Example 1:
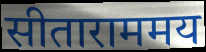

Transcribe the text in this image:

सीताराममय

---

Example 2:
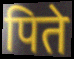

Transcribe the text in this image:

पिते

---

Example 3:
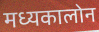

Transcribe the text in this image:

मध्यकालोन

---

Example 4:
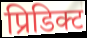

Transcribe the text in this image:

प्रिडिक्ट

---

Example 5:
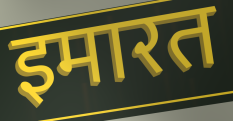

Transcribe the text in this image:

इमारत